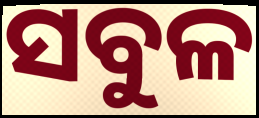
ସବୁଳ